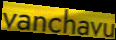
vanchavu